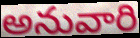
అనువారి